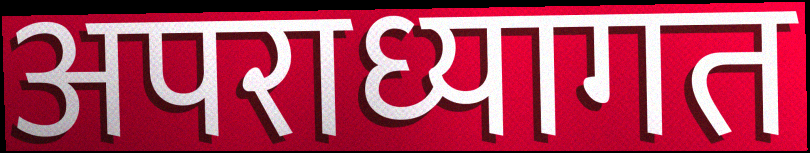
अपराध्यागत